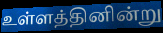
உள்ளத்தினின்று